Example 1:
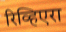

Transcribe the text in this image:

रिव्हिएरा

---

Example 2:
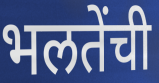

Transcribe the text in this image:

भलतेंची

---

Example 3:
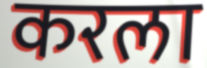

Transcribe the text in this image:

करला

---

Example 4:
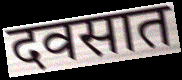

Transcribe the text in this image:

दवसात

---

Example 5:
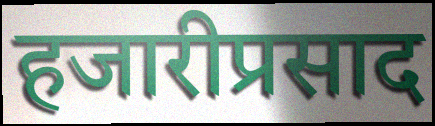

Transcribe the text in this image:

हजारीप्रसाद